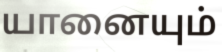
யானையும்